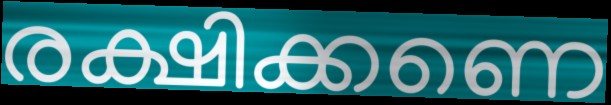
രക്ഷിക്കണെ